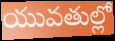
యువతుల్లో